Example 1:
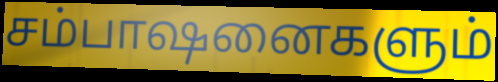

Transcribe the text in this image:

சம்பாஷனைகளும்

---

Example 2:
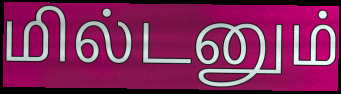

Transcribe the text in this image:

மில்டனும்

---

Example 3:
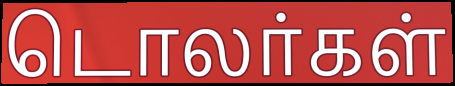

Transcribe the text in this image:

டொலர்கள்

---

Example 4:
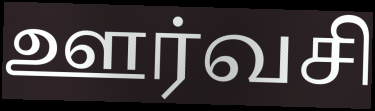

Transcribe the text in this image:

ஊர்வசி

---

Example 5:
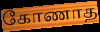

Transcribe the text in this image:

கோணாத